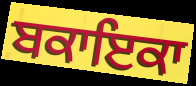
ਬਕਾਇਕਾ